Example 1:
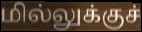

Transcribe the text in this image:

மில்லுக்குச்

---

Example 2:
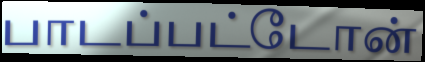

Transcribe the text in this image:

பாடப்பட்டோன்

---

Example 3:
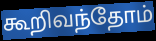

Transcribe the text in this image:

கூறிவந்தோம்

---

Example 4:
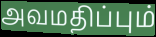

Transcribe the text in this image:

அவமதிப்பும்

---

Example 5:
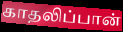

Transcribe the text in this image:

காதலிப்பான்